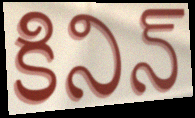
కినిన్